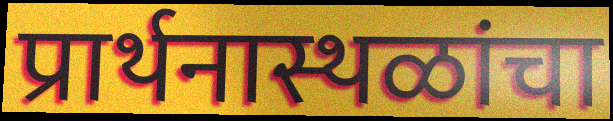
प्रार्थनास्थळांचा